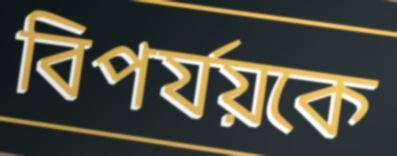
বিপর্যয়কে